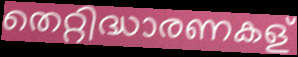
തെറ്റിദ്ധാരണകള്